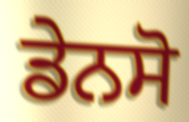
ਡੇਨਸੋ